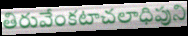
తిరువేంకటాచలాధిపుని